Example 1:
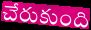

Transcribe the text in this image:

చేరుకుంది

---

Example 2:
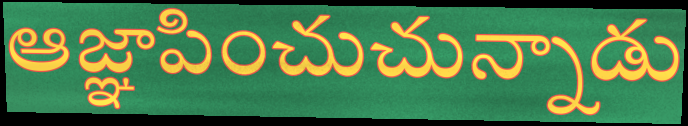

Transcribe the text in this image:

ఆజ్ఞాపించుచున్నాడు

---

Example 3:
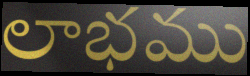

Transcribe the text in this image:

లాభము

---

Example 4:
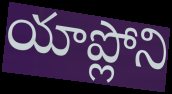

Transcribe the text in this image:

యాప్లోని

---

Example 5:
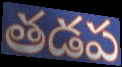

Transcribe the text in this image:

తడప